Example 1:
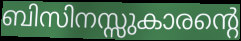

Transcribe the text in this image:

ബിസിനസ്സുകാരന്റെ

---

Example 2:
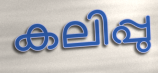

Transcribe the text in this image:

കലിപ്പു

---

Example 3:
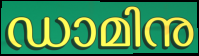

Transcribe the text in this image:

ഡാമിനു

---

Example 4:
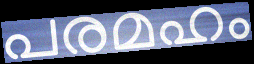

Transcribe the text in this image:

പരമഹം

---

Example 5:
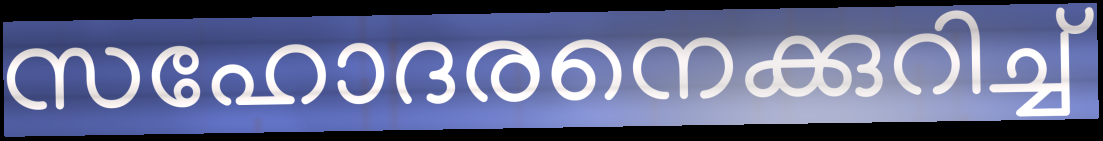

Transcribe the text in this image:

സഹോദരനെക്കുറിച്ച്